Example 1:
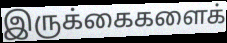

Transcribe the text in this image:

இருக்கைகளைக்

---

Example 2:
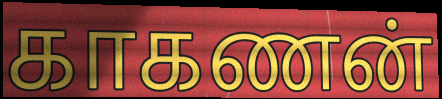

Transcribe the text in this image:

காகணன்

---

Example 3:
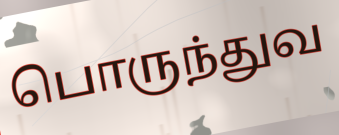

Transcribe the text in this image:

பொருந்துவ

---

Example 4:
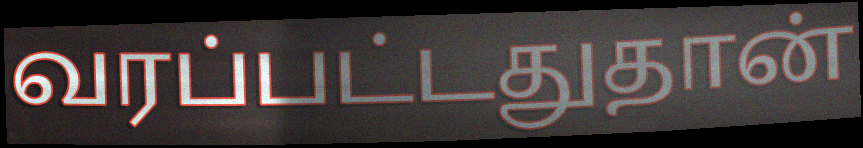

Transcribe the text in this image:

வரப்பட்டதுதான்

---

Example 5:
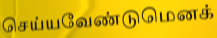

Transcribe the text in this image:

செய்யவேண்டுமெனக்